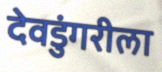
देवडुंगरीला